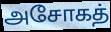
அசோகத்